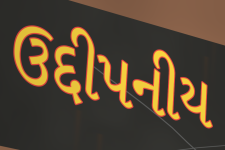
ઉદ્દીપનીય